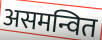
असमन्वित